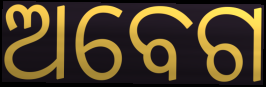
ଅବେଗ